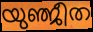
യുഞ്ജീത